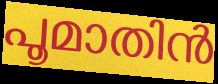
പൂമാതിൻ